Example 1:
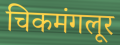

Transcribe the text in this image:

चिकमंगलूर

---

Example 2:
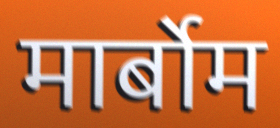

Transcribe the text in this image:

मार्बोम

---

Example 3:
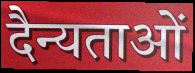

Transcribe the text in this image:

दैन्यताओं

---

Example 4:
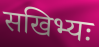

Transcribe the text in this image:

सखिभ्यः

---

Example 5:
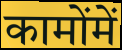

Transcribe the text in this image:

कामोंमें